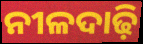
ନୀଳଦାଢ଼ି